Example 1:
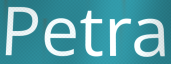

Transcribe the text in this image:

Petra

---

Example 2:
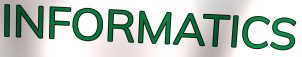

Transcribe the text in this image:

INFORMATICS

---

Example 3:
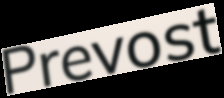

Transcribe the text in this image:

Prevost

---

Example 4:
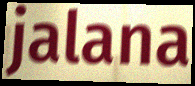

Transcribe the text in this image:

jalana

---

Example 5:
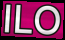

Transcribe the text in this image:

ILO